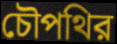
চৌপথির